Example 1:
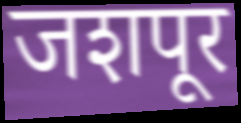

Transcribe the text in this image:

जशपूर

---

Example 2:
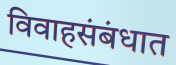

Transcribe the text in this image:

विवाहसंबंधात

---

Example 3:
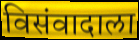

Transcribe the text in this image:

विसंवादाला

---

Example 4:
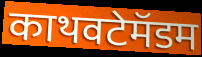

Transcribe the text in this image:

काथवटेमॅडम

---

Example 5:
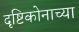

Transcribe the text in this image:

दृष्टिकोनाच्या